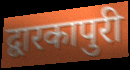
द्वारकापुरी